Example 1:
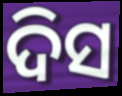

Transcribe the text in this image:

ଦିସ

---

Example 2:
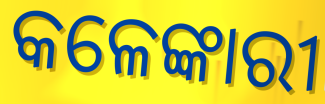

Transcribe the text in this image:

କଳେଙ୍କାରୀ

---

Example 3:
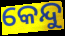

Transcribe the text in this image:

କେନ୍ଦୁ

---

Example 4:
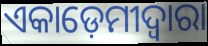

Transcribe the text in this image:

ଏକାଡ଼େମୀଦ୍ଵାରା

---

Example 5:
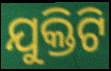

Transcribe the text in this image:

ଯୁକ୍ତିଟି